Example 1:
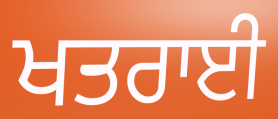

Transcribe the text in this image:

ਖਤਰਾਈ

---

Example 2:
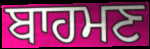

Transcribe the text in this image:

ਬਾਹਮਣ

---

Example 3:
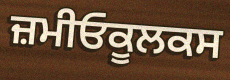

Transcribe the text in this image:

ਜ਼ਮੀਓਕੂਲਕਸ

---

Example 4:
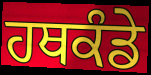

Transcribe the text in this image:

ਹਥਕੰਡੇ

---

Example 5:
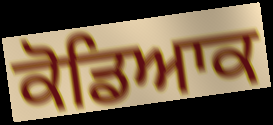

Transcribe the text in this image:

ਕੋਡਿਆਕ